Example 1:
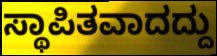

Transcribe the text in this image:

ಸ್ಥಾಪಿತವಾದದ್ದು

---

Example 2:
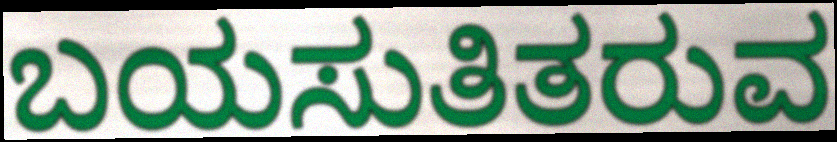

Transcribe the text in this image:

ಬಯಸುತಿತರುವ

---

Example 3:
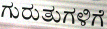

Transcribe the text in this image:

ಗುರುತುಗಳಿಗೆ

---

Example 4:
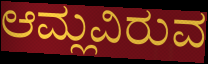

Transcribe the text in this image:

ಆಮ್ಲವಿರುವ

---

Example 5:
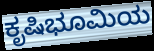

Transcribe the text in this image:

ಕೃಷಿಭೂಮಿಯ